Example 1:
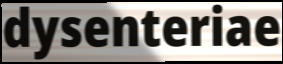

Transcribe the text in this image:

dysenteriae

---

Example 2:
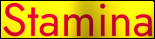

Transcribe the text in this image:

Stamina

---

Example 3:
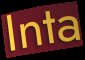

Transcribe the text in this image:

Inta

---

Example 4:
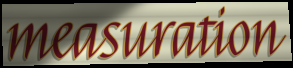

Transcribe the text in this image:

measuration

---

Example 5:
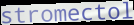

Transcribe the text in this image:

stromectol